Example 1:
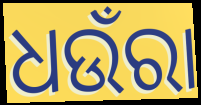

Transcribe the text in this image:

ଧଉଁରା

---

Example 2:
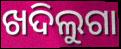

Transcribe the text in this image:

ଖଦିଲୁଗା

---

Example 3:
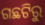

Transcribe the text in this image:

ଗଛଟିରୁ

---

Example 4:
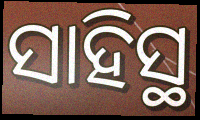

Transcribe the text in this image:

ସାହିସ୍ଥ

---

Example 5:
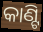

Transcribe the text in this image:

କାଣ୍ଟି